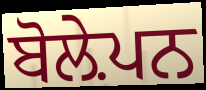
ਬੋਲ਼ੇਪਨ